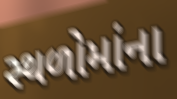
સ્થળોમાંના